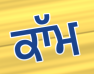
ਕਾੱਮ